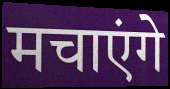
मचाएंगे